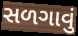
સળગાવું